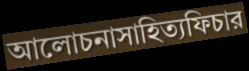
আলোচনাসাহিত্যফিচার